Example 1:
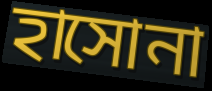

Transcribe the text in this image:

হাসোনা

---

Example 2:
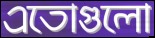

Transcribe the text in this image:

এতোগুলো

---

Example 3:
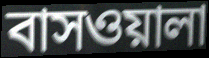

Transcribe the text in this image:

বাসওয়ালা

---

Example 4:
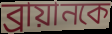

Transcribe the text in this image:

ব্রায়ানকে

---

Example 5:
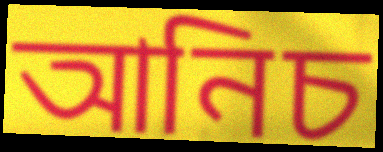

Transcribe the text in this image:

আনিচ